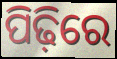
ପିଢ଼ିରେ